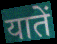
यातें